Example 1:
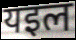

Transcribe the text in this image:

यइल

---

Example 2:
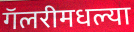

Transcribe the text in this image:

गॅलरीमधल्या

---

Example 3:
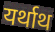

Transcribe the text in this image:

यर्थाथ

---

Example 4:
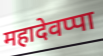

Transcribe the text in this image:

महादेवप्पा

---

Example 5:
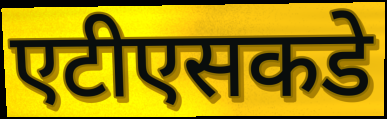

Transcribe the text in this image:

एटीएसकडे